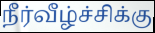
நீர்வீழ்ச்சிக்கு